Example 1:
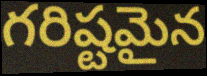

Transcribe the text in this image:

గరిష్టమైన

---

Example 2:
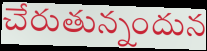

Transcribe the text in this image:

చేరుతున్నందున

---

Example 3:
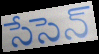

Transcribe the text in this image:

సేసెన్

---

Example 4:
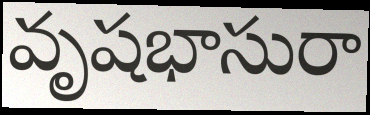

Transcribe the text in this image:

వృషభాసురా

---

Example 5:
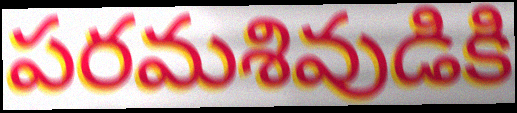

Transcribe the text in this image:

పరమశివుడికి